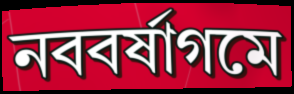
নববর্ষাগমে